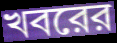
খবরের